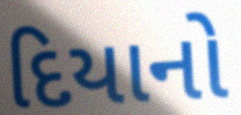
દિયાનો